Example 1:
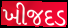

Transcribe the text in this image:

ખીજદડ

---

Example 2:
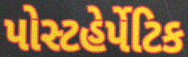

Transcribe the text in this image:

પોસ્ટહેર્પેટિક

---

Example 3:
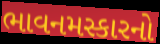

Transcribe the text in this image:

ભાવનમસ્કારનો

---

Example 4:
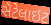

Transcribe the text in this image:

સૅટેલાઇટ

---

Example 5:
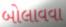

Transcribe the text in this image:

બોલાવવા